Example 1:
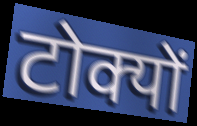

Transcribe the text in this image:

टोक्यों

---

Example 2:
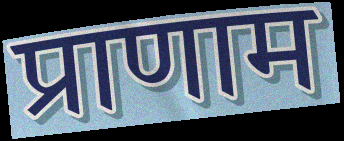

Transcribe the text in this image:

प्राणाम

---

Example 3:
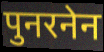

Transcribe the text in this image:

पुनरनेन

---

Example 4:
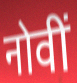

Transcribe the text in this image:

नोवीं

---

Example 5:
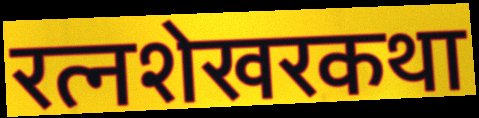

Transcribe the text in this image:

रत्नशेखरकथा